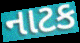
નાટક